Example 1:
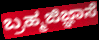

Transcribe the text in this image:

ಬ್ರಹ್ಮಜಿಜ್ಞಾಸೆ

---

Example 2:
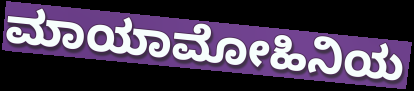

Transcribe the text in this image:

ಮಾಯಾಮೋಹಿನಿಯ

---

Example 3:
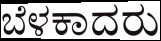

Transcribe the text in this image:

ಬೆಳಕಾದರು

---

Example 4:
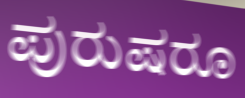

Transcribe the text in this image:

ಪುರುಷರೂ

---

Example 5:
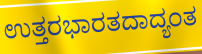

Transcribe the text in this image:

ಉತ್ತರಭಾರತದಾದ್ಯಂತ